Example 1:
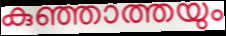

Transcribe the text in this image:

കുഞ്ഞാത്തയും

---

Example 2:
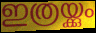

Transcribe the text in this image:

ഇത്രയ്ക്കും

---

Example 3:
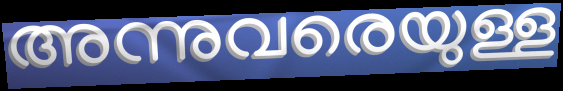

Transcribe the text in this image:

അന്നുവരെയുള്ള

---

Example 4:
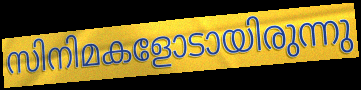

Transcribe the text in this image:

സിനിമകളോടായിരുന്നു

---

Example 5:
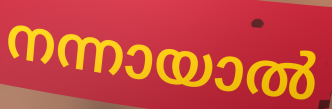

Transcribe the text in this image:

നന്നായാൽ